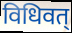
विधिवत्